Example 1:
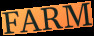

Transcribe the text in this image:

FARM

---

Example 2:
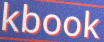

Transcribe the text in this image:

kbook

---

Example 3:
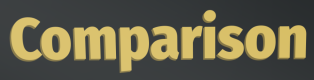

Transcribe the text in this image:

Comparison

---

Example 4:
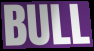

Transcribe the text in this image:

BULL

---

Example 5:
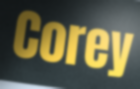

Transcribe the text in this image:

Corey